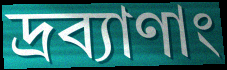
দ্রব্যাণাং